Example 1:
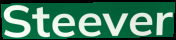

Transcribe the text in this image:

Steever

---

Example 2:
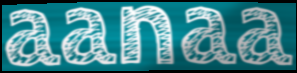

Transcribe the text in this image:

aanaa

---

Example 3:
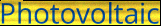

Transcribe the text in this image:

Photovoltaic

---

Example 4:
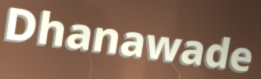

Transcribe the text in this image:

Dhanawade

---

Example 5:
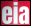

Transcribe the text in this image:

eia